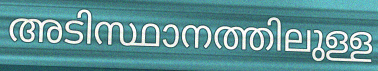
അടിസ്ഥാനത്തിലുള്ള